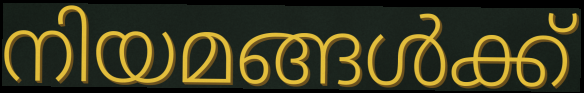
നിയമങ്ങൾക്ക്